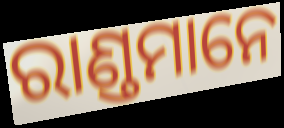
ରାଣ୍ଡମାନେ